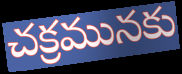
చక్రమునకు